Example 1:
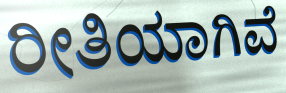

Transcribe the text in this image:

ರೀತಿಯಾಗಿವೆ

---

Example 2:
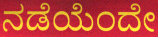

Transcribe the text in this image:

ನಡೆಯೆಂದೇ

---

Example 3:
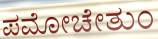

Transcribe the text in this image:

ಪಮೋಚೇತುಂ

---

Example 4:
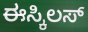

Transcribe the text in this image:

ಈಸ್ಕಿಲಸ್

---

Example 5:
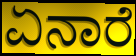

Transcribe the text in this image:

ಏನಾರೆ